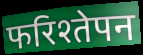
फरिश्तेपन